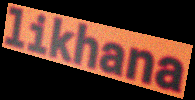
likhana